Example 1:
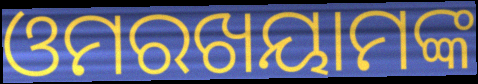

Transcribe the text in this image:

ଓମରଖୟାମଙ୍କ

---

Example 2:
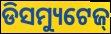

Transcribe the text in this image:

ଡିସମ୍ୟୁଟେଜ୍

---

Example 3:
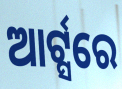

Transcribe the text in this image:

ଆର୍ଟ୍ସରେ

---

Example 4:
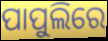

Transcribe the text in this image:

ପାପୁଲିରେ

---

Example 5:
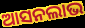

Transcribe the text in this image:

ଆସନଲାଭ